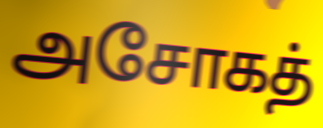
அசோகத்